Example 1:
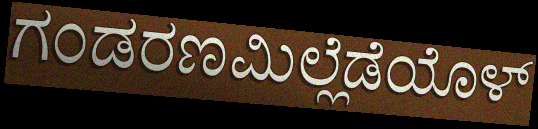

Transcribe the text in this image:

ಗಂಡರಣಮಿಲ್ಲೆಡೆಯೊಳ್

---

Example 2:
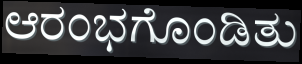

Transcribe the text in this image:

ಆರಂಭಗೊಂಡಿತು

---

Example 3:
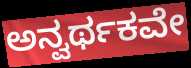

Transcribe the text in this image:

ಅನ್ವರ್ಥಕವೇ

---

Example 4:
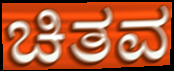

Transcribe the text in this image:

ಚಿತವ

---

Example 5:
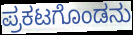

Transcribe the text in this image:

ಪ್ರಕಟಗೊಂಡನು